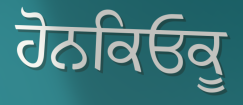
ਹੋਨਕਿਓਕੂ